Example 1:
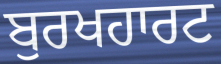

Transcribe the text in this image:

ਬੁਰਖਹਾਰਟ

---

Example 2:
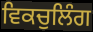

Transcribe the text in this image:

ਵਿਕਚੁਲਿੰਗ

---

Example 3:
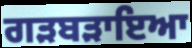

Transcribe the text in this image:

ਗੜਬੜਾਇਆ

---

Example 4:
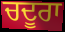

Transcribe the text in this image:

ਚਦੂਰਾ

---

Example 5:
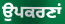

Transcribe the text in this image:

ਉਪਕਰਣਾਂ